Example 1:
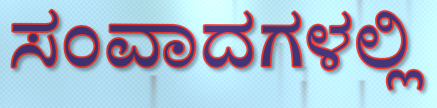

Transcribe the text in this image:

ಸಂವಾದಗಳಲ್ಲಿ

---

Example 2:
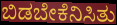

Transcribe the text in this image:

ಬಿಡಬೇಕೆನಿಸಿತು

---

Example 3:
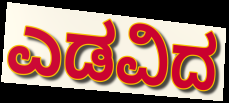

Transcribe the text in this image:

ಎಡವಿದ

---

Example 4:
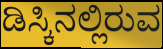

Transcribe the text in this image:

ಡಿಸ್ಕಿನಲ್ಲಿರುವ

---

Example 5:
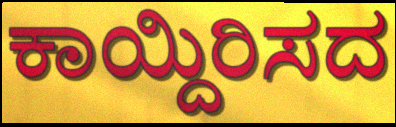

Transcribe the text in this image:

ಕಾಯ್ದಿರಿಸದ